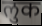
लुक